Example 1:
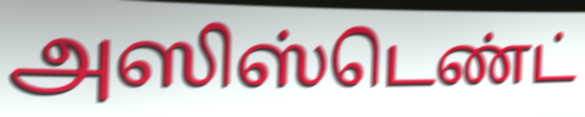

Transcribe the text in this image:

அஸிஸ்டெண்ட்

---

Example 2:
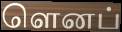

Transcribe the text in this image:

ளெனப்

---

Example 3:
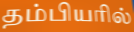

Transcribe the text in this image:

தம்பியரில்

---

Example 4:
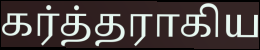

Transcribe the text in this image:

கர்த்தராகிய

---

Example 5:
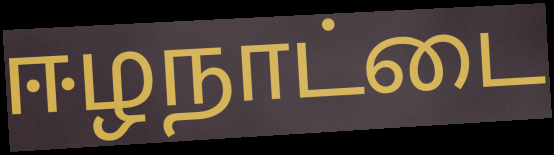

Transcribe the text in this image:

ஈழநாட்டை